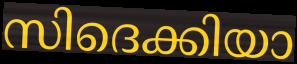
സിദെക്കിയാ